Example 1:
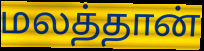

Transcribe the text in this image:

மலத்தான்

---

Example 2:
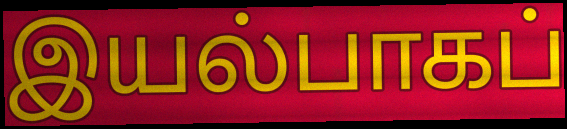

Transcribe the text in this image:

இயல்பாகப்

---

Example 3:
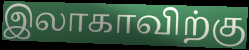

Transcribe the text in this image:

இலாகாவிற்கு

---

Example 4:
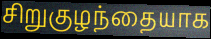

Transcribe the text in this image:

சிறுகுழந்தையாக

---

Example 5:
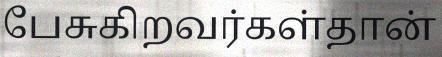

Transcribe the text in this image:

பேசுகிறவர்கள்தான்